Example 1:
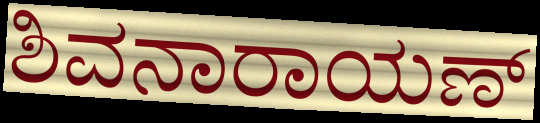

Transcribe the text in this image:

ಶಿವನಾರಾಯಣ್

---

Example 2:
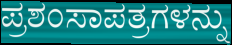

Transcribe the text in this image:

ಪ್ರಶಂಸಾಪತ್ರಗಳನ್ನು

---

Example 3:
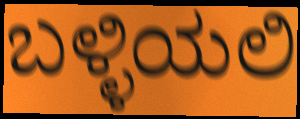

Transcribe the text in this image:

ಬಳ್ಳಿಯಲಿ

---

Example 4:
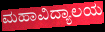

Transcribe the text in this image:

ಮಹಾವಿದ್ಯಾಲಯ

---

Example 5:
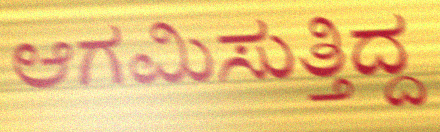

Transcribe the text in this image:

ಆಗಮಿಸುತ್ತಿದ್ದ